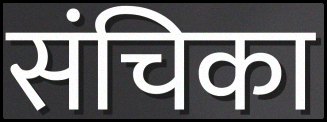
संचिका